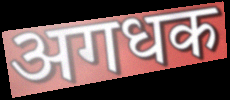
अगधक